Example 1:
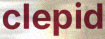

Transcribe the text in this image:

clepid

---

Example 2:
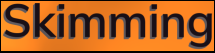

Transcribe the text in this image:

Skimming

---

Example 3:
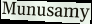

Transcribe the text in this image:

Munusamy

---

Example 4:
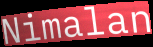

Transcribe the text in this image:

Nimalan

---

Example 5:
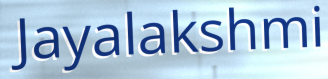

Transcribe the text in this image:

Jayalakshmi